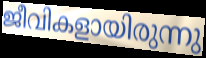
ജീവികളായിരുന്നു